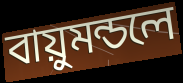
বায়ুমন্ডলে